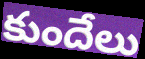
కుందేలు